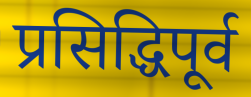
प्रसिद्धिपूर्व